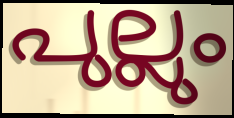
പുല്ലും